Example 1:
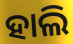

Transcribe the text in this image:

ହାଲି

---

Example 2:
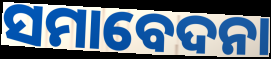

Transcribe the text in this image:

ସମାବେଦନା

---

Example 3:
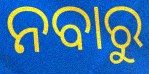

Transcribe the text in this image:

ନବାରୁ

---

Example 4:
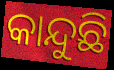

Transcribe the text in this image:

କାନ୍ଦୁଛି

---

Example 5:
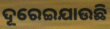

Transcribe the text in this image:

ଦୂରେଇଯାଉଛି